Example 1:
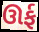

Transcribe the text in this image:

ઊર્ફ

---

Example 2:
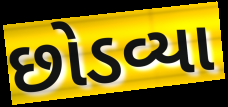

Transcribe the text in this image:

છોડવ્યા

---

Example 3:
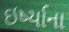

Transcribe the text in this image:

ઇર્ષ્યાના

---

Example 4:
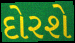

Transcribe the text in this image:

દોરશે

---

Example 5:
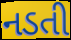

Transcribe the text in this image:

નડતી